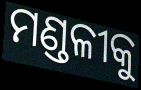
ମଣ୍ଡଳୀକୁ